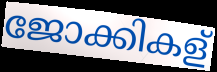
ജോക്കികള്